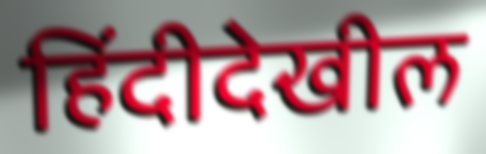
हिंदीदेखील